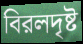
বিরলদৃষ্ট